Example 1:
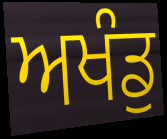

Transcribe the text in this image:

ਅਖੰਡੁ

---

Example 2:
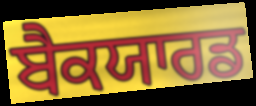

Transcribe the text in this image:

ਬੈਕਯਾਰਡ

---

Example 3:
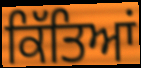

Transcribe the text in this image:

ਕਿੱਤਿਆਂ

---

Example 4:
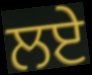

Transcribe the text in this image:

ਲਏ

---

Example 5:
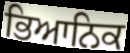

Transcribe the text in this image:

ਭਿਆਨਿਕ